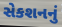
સેકશનનું